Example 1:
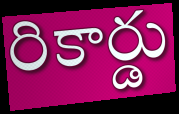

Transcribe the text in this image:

రికార్డు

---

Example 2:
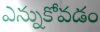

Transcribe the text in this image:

ఎన్నుకోవడం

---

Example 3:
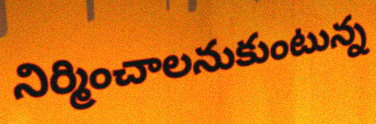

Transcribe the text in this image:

నిర్మించాలనుకుంటున్న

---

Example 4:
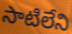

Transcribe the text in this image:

సాటిలేని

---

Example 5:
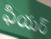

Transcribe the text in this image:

ఫియర్